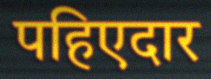
पहिएदार